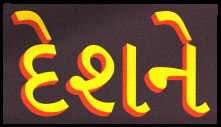
દેશને